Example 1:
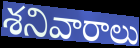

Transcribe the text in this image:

శనివారాలు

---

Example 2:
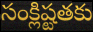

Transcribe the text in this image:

సంక్లిష్టతకు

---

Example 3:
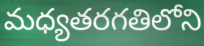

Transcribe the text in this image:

మధ్యతరగతిలోని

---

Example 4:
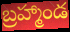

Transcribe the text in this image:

బ్రహ్మాండ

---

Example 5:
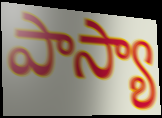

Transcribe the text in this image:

పాస్యా